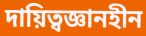
দায়িত্বজ্ঞানহীন